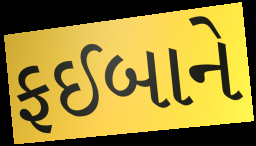
ફઈબાને